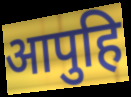
आपुहि